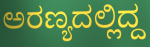
ಅರಣ್ಯದಲ್ಲಿದ್ದ